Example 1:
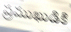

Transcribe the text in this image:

ప్రముఖుడికి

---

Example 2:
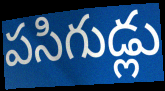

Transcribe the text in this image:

పసిగుడ్లు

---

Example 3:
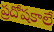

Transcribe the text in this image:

ప్రదోషకాలే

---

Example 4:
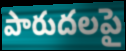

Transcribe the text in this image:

పారుదలపై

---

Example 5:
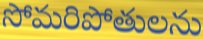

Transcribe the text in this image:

సోమరిపోతులను